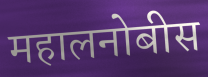
महालनोबीस